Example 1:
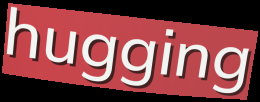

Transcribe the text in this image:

hugging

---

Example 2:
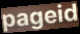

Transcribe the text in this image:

pageid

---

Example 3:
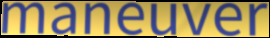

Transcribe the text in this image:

maneuver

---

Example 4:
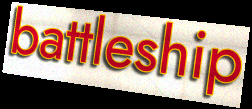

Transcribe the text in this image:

battleship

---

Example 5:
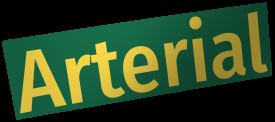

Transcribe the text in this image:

Arterial